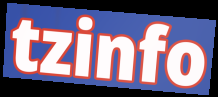
tzinfo